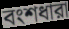
বংশধারা